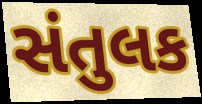
સંતુલક